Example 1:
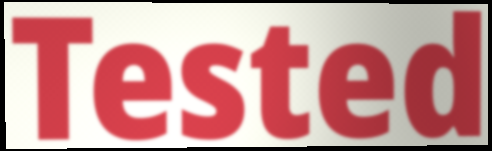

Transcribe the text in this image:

Tested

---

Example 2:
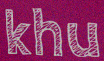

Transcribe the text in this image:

khu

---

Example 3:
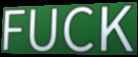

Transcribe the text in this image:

FUCK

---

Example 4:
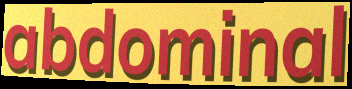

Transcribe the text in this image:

abdominal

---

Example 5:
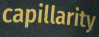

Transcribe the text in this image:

capillarity